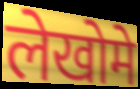
लेखोमे